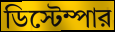
ডিস্টেম্পার